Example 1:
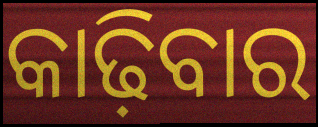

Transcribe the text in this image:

କାଢ଼ିବାର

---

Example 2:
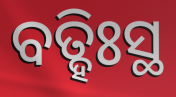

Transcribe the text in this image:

ବତ୍ହିଃସ୍ଥ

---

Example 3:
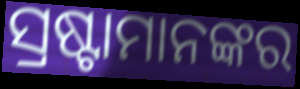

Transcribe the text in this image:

ସ୍ରଷ୍ଟାମାନଙ୍କର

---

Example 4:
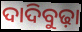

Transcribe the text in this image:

ଦାଦିବୁଢ଼ା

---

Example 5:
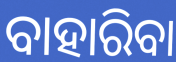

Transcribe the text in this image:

ବାହାରିବା